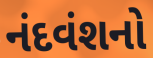
નંદવંશનો